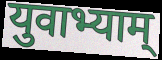
युवाभ्याम्